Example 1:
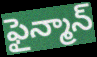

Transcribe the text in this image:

ఫైన్మాన్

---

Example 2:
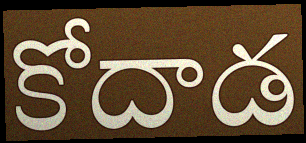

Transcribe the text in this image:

కోదాడ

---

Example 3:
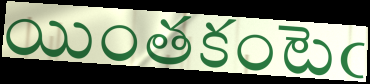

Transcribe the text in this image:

యింతకంటెఁ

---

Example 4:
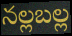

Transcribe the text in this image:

నల్లబల్ల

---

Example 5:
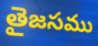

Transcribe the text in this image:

తైజసము